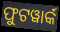
ଫୁଟୱାର୍କ